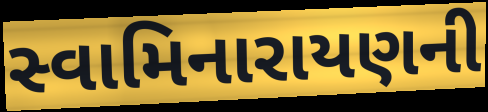
સ્વામિનારાયણની